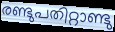
രണ്ടുപതിറ്റാണ്ടു